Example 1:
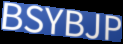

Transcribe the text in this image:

BSYBJP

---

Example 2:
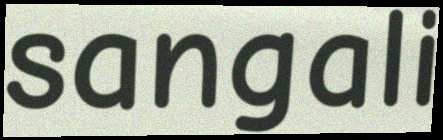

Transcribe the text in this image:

sangali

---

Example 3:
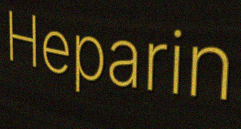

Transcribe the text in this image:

Heparin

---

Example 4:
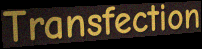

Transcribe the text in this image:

Transfection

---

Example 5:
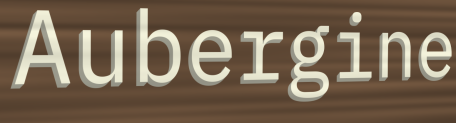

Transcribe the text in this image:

Aubergine